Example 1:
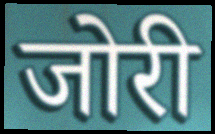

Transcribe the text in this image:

जोरी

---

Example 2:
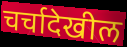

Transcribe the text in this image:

चर्चादेखील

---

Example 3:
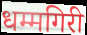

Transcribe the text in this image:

धम्मगिरी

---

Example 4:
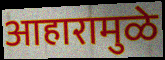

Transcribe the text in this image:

आहारामुळे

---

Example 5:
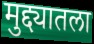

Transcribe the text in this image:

मुद्द्यातला